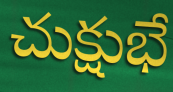
చుక్షుభే